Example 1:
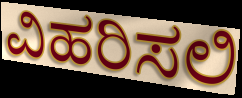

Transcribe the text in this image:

ವಿಹರಿಸಲಿ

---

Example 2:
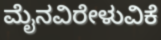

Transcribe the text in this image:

ಮೈನವಿರೇಳುವಿಕೆ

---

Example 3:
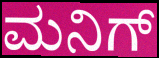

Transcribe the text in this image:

ಮನಿಗ್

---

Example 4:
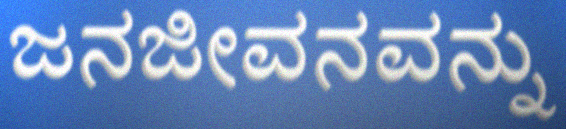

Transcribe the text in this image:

ಜನಜೀವನವನ್ನು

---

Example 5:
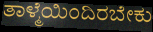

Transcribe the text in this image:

ತಾಳ್ಮೆಯಿಂದಿರಬೇಕು